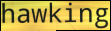
hawking